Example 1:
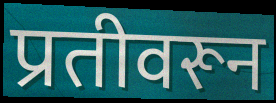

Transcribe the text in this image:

प्रतीवरून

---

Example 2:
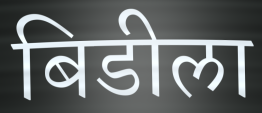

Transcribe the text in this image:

बिडीला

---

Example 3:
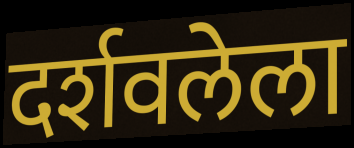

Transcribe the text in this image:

दर्शवलेला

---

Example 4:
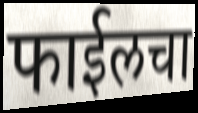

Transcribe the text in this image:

फाईलचा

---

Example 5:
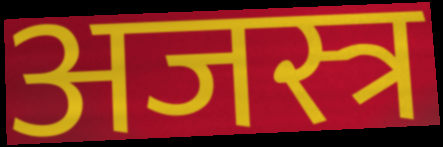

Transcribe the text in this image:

अजस्त्र